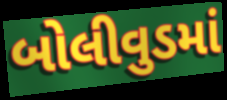
બોલીવુડમાં